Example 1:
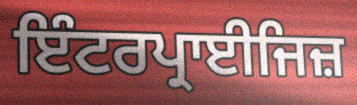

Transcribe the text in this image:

ਇੰਟਰਪ੍ਰਾਈਜਿਜ਼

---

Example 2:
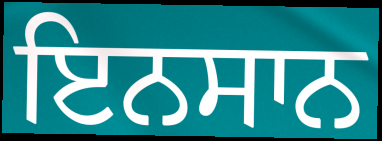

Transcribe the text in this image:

ਇਨਸਾਨ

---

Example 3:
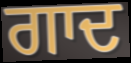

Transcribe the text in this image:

ਗਾਦ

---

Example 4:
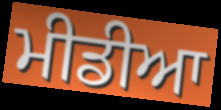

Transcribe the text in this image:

ਮੀਡੀਆ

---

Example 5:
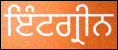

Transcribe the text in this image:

ਇੰਟਗ੍ਰੀਨ